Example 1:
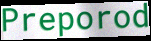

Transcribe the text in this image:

Preporod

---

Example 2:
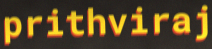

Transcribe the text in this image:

prithviraj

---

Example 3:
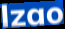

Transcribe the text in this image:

Izao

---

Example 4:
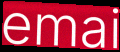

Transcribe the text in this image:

emai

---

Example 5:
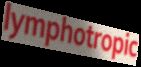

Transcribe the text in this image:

lymphotropic